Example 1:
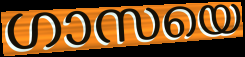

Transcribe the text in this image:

ഗാസയെ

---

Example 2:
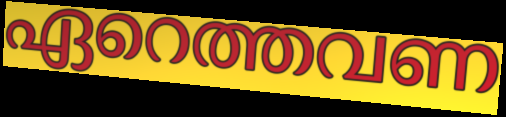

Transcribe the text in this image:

ഏറെത്തവണ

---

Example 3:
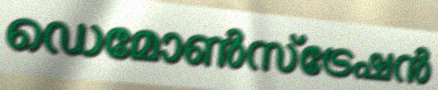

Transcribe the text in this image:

ഡെമോൺസ്ട്രേഷൻ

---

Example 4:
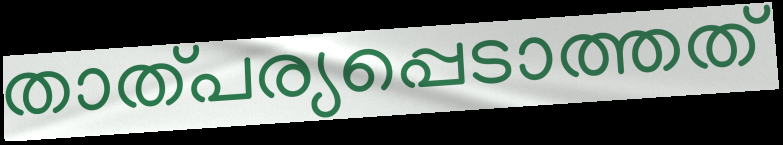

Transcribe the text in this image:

താത്പര്യപ്പെടാത്തത്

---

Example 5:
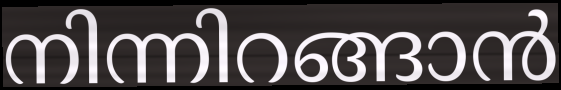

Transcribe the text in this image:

നിന്നിറങ്ങാൻ